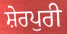
ਸ਼ੇਰਪੁਰੀ